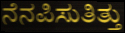
ನೆನಪಿಸುತಿತ್ತು